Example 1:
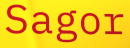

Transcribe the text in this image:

Sagor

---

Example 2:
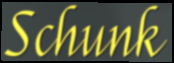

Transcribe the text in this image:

Schunk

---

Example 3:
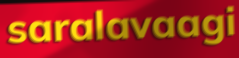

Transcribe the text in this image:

saralavaagi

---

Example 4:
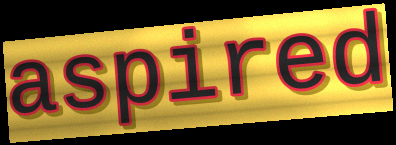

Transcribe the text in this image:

aspired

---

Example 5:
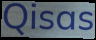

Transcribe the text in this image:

Qisas